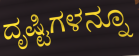
ದೃಷ್ಟಿಗಳನ್ನೂ